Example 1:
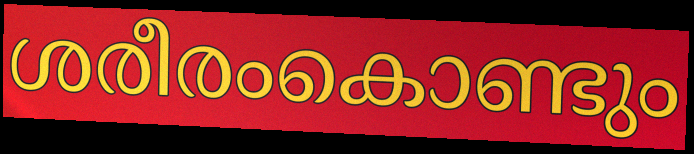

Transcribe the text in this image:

ശരീരംകൊണ്ടും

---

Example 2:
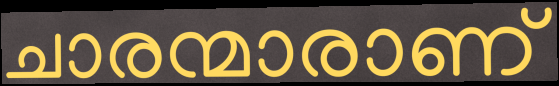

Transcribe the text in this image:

ചാരന്മാരാണ്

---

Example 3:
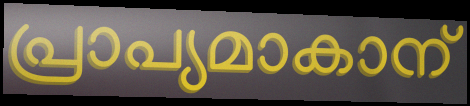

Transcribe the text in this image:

പ്രാപ്യമാകാന്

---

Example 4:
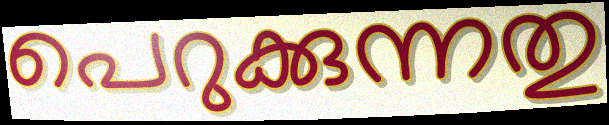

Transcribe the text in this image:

പെറുക്കുന്നതു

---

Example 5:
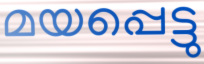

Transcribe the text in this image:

മയപ്പെട്ടു